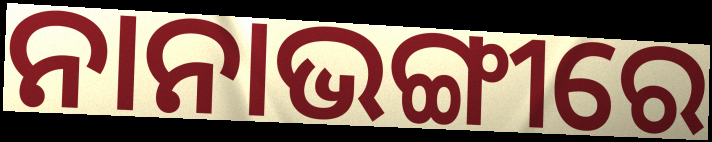
ନାନାଭଙ୍ଗୀରେ